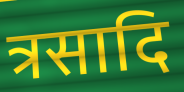
त्रसादि